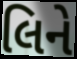
લિને